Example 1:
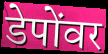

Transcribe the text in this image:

डेपोंवर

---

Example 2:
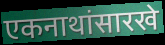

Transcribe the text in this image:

एकनाथांसारखे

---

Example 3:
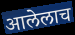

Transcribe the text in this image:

आलेलाच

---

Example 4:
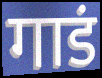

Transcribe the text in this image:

गाडं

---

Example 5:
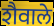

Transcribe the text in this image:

शैवाले